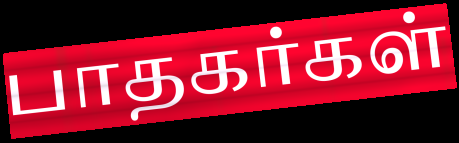
பாதகர்கள்